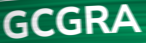
GCGRA